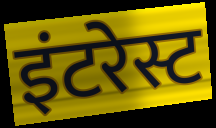
इंटरेस्ट